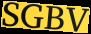
SGBV